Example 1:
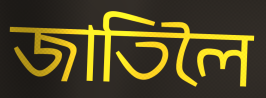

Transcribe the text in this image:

জাতিলৈ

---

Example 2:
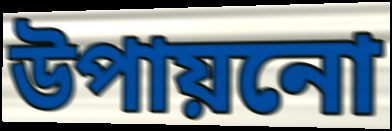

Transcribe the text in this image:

উপায়নো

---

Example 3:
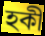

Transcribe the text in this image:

হকী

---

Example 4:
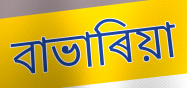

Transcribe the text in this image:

বাভাৰিয়া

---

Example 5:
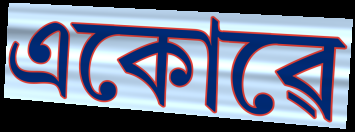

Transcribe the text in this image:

একোৱে